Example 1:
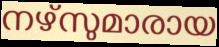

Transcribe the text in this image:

നഴ്സുമാരായ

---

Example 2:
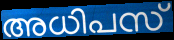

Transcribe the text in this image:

അധിപസ്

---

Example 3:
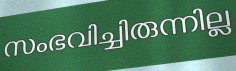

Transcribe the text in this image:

സംഭവിച്ചിരുന്നില്ല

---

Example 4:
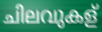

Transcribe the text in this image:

ചിലവുകള്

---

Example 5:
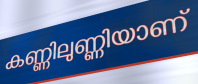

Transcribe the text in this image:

കണ്ണിലുണ്ണിയാണ്